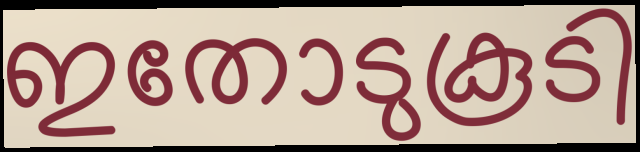
ഇതോടുകൂടി